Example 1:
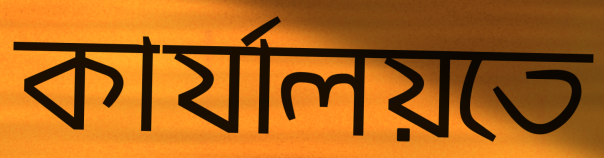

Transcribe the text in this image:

কাৰ্যালয়তে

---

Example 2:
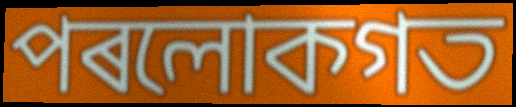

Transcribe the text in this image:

পৰলোকগত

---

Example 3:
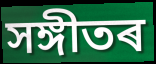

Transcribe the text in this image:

সঙ্গীতৰ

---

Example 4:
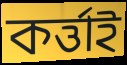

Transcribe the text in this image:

কৰ্ত্তাই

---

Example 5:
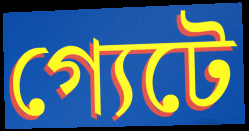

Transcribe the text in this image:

গ্যেটে